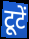
टूटें